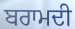
ਬਰਾਮਦੀ